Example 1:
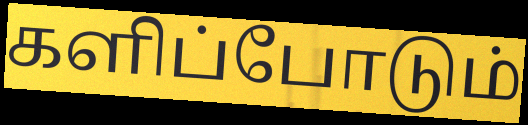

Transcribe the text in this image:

களிப்போடும்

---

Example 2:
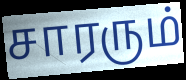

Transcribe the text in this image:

சாரரும்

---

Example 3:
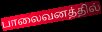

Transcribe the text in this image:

பாலைவனத்தில்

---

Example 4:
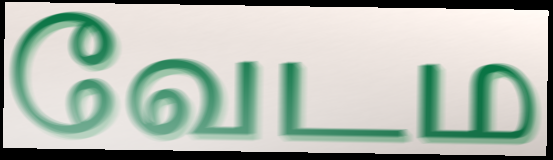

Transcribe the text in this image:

வேடம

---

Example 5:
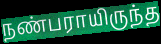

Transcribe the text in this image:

நண்பராயிருந்த